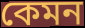
কেমন